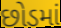
છોડમાં